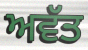
ਅਵੱਤ